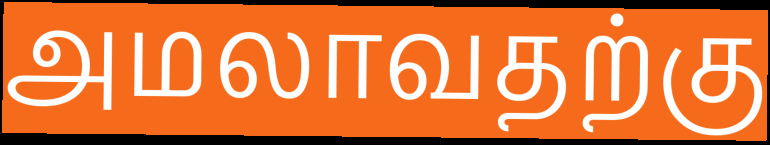
அமலாவதற்கு